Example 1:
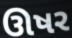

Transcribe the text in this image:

ઊષર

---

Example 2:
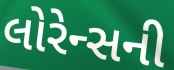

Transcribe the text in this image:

લોરેન્સની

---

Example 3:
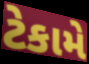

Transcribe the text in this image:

ટેકામે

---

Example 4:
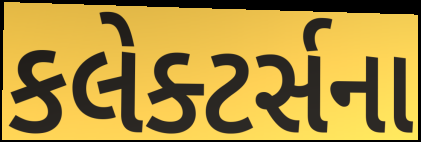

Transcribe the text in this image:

કલેક્ટર્સના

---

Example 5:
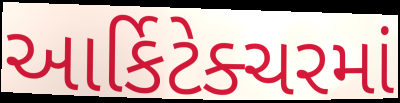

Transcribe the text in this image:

આર્કિટેક્ચરમાં